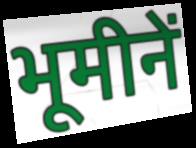
भूमीनें